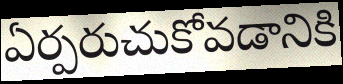
ఏర్పరుచుకోవడానికి